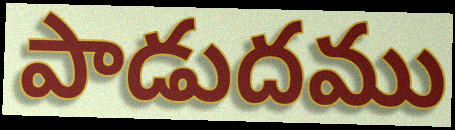
పాడుదము